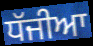
ਧੱਜੀਆ